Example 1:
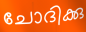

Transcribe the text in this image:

ചോദിക്കു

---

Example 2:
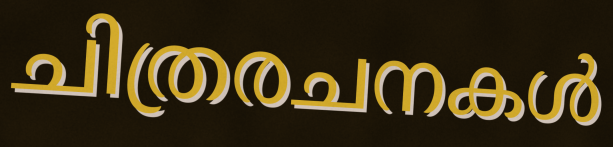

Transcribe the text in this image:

ചിത്രരചനകൾ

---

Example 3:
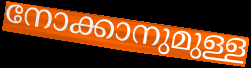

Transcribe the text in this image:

നോക്കാനുമുള്ള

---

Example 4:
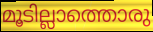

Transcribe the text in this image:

മൂടില്ലാത്തൊരു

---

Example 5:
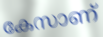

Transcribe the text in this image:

കേസാണ്